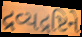
દ્રવ્યદ્રષ્ટિને